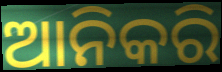
ଆନିକରି